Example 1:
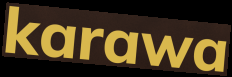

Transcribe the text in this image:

karawa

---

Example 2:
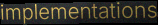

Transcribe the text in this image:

implementations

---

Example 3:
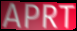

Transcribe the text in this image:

APRT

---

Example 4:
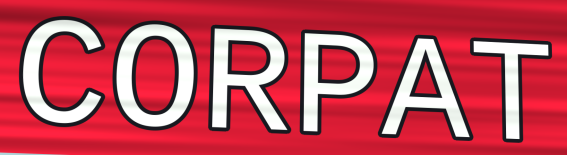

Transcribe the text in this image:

CORPAT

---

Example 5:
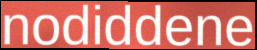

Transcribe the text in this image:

nodiddene